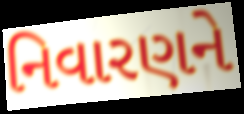
નિવારણને